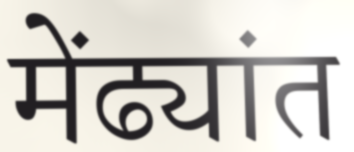
मेंढ्यांत